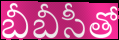
బీబీసీతో